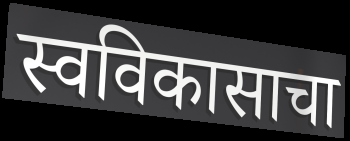
स्वविकासाचा